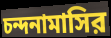
চন্দনামাসির